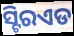
ସ୍ଟିରଏଡ